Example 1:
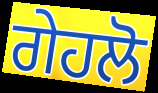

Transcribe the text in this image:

ਗੇਹਲੋ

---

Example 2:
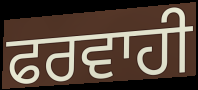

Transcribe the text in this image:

ਫਰਵਾਹੀ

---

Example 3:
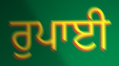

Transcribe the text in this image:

ਰੁਪਾਈ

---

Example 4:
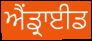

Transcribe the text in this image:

ਐਂਡ੍ਰਾਈਡ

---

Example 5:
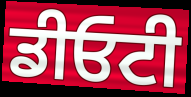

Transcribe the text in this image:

ਡੀਓਟੀ